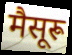
मैसूरू